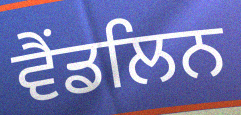
ਵੈਂਡਲਿਨ